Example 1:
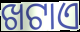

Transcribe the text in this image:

ଖଟାଏ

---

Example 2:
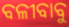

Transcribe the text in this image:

ବଳୀବାବୁ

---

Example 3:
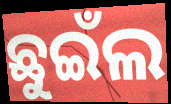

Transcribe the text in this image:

ଛୁଇଁଲ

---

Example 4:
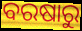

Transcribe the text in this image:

ବରଷାରୁ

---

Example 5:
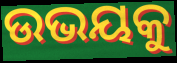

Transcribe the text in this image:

ଉଭୟକୁ